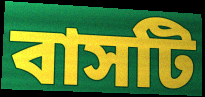
বাসটি